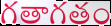
గతాగతం